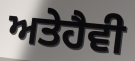
ਅਤੇਹੈਵੀ